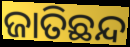
ଜାତିଛନ୍ଦ